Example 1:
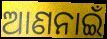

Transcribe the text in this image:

ଆଣନାଇଁ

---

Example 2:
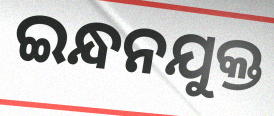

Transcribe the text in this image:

ଇନ୍ଧନଯୁକ୍ତ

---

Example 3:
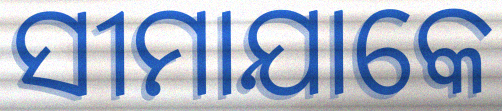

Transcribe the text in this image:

ସୀମାଯାକେ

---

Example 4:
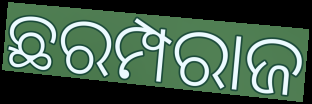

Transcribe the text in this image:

ଛରମ୍ପରାଜ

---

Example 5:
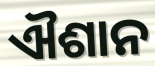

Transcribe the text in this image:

ଐଶାନ